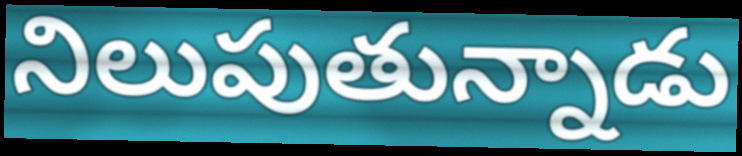
నిలుపుతున్నాడు